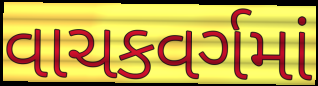
વાચકવર્ગમાં